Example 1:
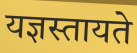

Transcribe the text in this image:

यज्ञस्तायते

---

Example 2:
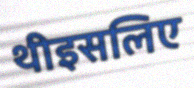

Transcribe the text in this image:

थीइसलिए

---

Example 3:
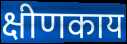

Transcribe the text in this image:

क्षीणकाय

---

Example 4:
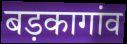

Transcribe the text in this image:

बड़कागांव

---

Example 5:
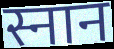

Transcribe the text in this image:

स्‍नान